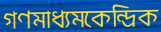
গণমাধ্যমকেন্দ্রিক